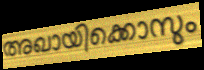
അഖായിക്കൊസും